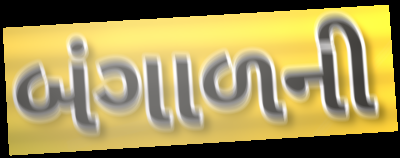
બંગાળની